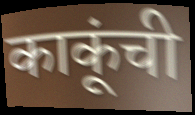
काकूंची